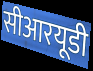
सीआरयूडी